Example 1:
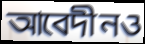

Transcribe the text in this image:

আবেদীনও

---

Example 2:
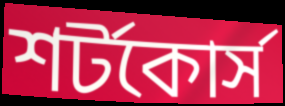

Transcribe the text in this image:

শর্টকোর্স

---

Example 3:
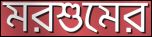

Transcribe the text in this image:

মরশুমের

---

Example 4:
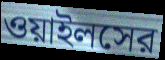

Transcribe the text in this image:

ওয়াইলসের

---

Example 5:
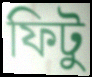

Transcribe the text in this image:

ফিটু